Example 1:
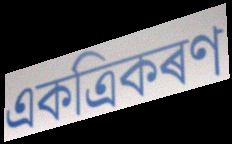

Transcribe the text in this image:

একত্ৰিকৰণ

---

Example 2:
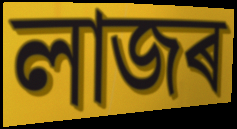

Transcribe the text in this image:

লাজৰ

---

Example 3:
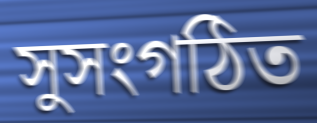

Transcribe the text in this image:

সুসংগঠিত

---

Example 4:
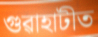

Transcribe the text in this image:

গুৱাহাটীত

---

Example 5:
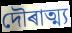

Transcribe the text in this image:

দৌৰাত্ম্য